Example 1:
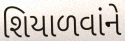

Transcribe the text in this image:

શિયાળવાંને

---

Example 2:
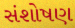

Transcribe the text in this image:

સંશોષણ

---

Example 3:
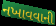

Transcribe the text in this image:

નખાવવાની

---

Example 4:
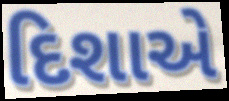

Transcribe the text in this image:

દિશાએ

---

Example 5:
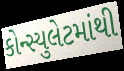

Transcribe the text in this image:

કોન્સ્યુલેટમાંથી